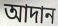
আদান